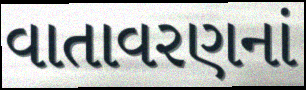
વાતાવરણનાં